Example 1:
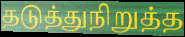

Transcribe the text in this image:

தடுத்துநிறுத்த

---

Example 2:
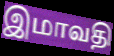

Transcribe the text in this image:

இமாவதி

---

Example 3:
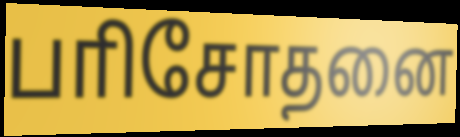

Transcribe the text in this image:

பரிசோதனை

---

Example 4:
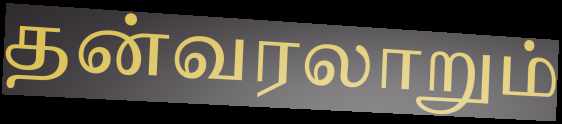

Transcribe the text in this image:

தன்வரலாறும்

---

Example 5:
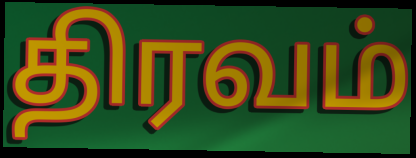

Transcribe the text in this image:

திரவம்